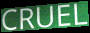
CRUEL